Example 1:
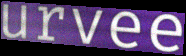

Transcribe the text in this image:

urvee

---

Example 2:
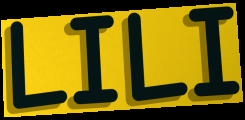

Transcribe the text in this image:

LILI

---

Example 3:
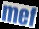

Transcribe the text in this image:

mef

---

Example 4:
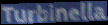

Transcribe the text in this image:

Turbinella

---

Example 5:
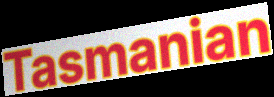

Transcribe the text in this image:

Tasmanian